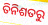
ତିନିଶତରୁ